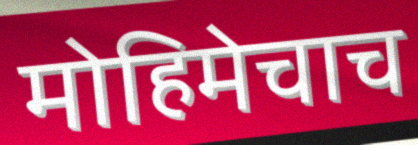
मोहिमेचाच